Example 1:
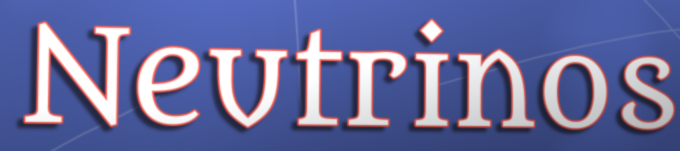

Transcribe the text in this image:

Neutrinos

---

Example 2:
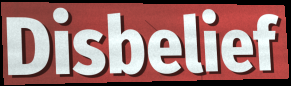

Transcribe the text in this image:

Disbelief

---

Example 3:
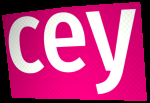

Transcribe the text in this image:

cey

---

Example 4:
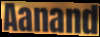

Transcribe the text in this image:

Aanand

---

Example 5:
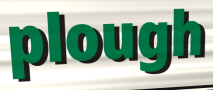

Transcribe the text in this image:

plough